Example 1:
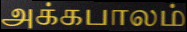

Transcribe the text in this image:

அக்கபாலம்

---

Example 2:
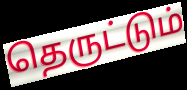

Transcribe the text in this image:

தெருட்டும்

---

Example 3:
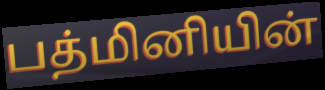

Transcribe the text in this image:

பத்மினியின்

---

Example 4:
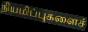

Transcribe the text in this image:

நியமிப்புகளைச்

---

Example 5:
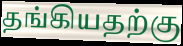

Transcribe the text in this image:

தங்கியதற்கு